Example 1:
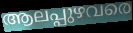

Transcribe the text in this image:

ആലപ്പുഴവരെ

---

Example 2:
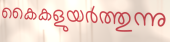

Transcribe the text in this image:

കൈകളുയർത്തുന്നു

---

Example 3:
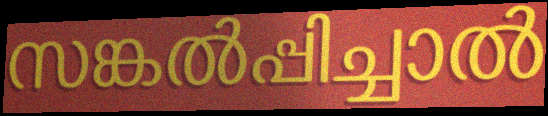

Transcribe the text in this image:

സങ്കൽപ്പിച്ചാൽ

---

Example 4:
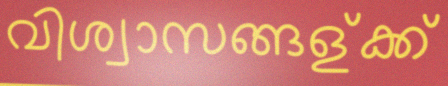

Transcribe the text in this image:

വിശ്വാസങ്ങള്ക്ക്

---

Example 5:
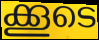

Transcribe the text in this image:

ക്കൂടെ